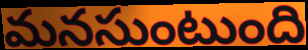
మనసుంటుంది